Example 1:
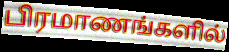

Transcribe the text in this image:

பிரமாணங்களில்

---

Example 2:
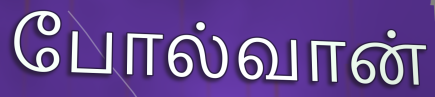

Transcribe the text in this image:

போல்வான்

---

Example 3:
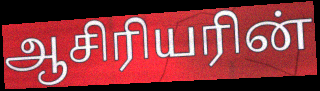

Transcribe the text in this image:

ஆசிரியரின்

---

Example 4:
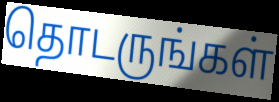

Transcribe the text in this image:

தொடருங்கள்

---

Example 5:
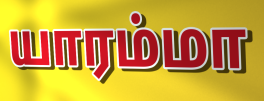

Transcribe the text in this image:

யாரம்மா